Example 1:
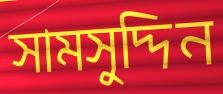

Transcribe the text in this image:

সামসুদ্দিন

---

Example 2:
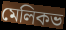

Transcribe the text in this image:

মেলিকভ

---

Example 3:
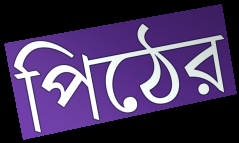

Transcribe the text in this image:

পিঠের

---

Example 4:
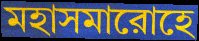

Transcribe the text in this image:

মহাসমারোহে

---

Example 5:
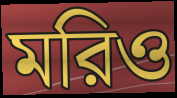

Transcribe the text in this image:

মরিও